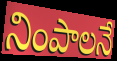
నింపాలనే